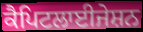
ਕੈਪਿਟਲਾਈਜੇਸ਼ਨ